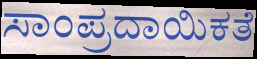
ಸಾಂಪ್ರದಾಯಿಕತೆ